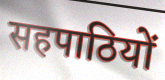
सहपाठियों